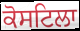
ਕੋਸਟਿਲਾ